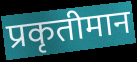
प्रकृतीमान